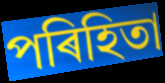
পৰিহিতা